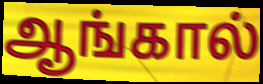
ஆங்கால்